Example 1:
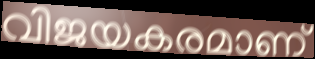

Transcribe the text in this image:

വിജയകരമാണ്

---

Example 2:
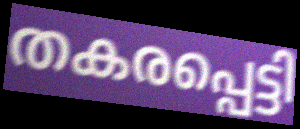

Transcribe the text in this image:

തകരപ്പെട്ടി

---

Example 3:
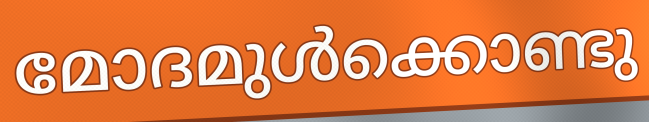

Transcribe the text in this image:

മോദമുൾക്കൊണ്ടു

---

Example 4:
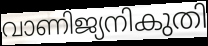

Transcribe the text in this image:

വാണിജ്യനികുതി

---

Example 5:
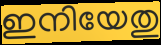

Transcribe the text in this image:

ഇനിയേതു